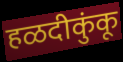
हळदीकुंकू